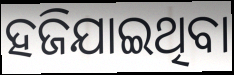
ହଜିଯାଇଥିବା